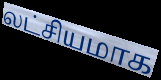
லட்சியமாக